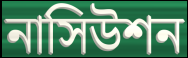
নাসিউশন